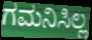
ಗಮನಿಸಿಲ್ಲ